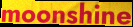
moonshine